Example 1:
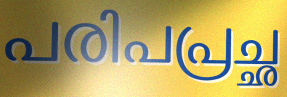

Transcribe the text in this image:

പരിപപ്രച്ഛ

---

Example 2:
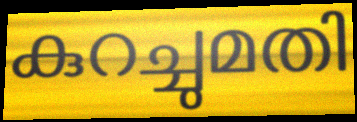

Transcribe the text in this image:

കുറച്ചുമതി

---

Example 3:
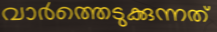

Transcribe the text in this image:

വാർത്തെടുക്കുന്നത്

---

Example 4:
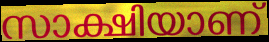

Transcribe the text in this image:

സാക്ഷിയാണ്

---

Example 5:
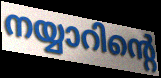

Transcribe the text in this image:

നയ്യാറിന്റെ